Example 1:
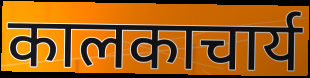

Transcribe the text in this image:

कालकाचार्य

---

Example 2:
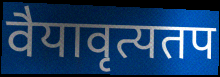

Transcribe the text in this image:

वैयावृत्यतप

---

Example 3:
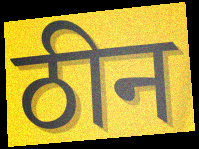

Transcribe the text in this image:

ठीन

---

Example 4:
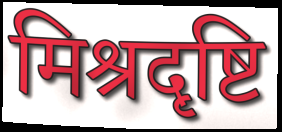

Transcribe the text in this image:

मिश्रदृष्टि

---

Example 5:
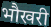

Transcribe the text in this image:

भौखरी